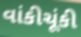
વાંકીચૂંકી